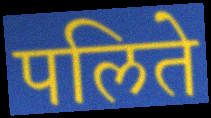
पलिते